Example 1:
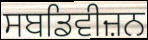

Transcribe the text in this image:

ਸਬਡਿਵੀਜ਼ਨ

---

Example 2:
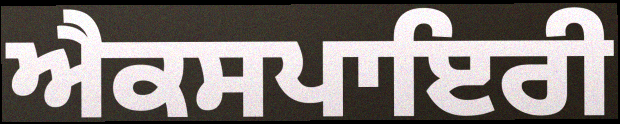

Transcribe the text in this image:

ਐਕਸਪਾਇਰੀ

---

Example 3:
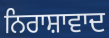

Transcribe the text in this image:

ਨਿਰਾਸ਼ਾਵਾਦ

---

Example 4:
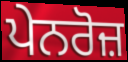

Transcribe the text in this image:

ਪੇਨਰੋਜ਼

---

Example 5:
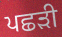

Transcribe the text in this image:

ਪਛੜੀ